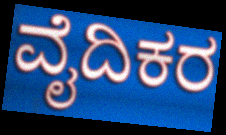
ವೈದಿಕರ